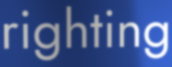
righting